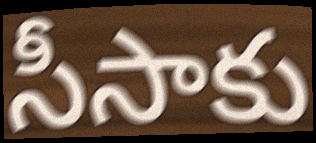
సీసాకు